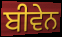
ਬੀਵੇਨ